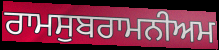
ਰਾਮਸੁਬਰਾਮਨੀਅਮ